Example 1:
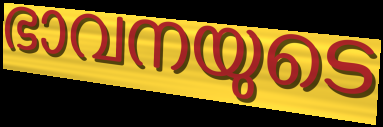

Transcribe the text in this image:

ഭാവനയുടെ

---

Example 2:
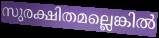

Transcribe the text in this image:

സുരക്ഷിതമല്ലെങ്കിൽ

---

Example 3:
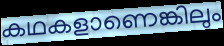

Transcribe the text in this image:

കഥകളാണെങ്കിലും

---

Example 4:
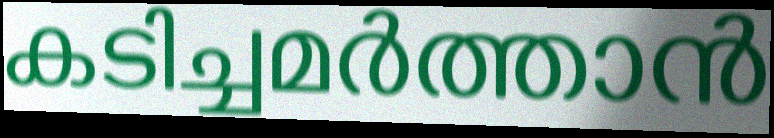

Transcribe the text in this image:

കടിച്ചമർത്താൻ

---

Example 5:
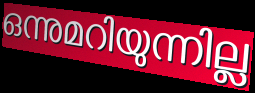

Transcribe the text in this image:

ഒന്നുമറിയുന്നില്ല